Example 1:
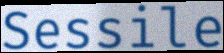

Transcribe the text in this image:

Sessile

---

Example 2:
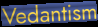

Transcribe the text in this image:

Vedantism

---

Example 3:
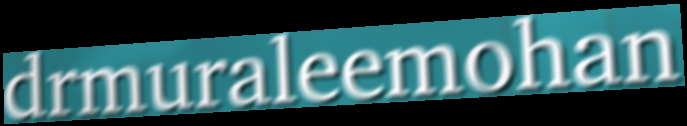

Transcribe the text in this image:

drmuraleemohan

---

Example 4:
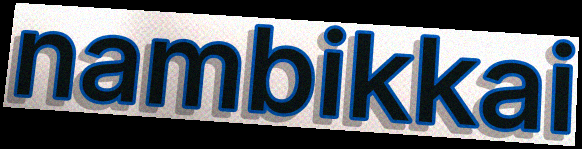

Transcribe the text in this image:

nambikkai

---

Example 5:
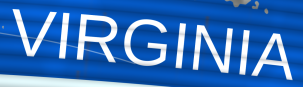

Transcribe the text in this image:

VIRGINIA